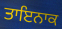
ਤਾਇਨਾਕ